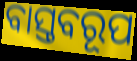
ବାସ୍ତବରୂପ